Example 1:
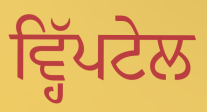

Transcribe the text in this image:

ਵ੍ਹਿੱਪਟੇਲ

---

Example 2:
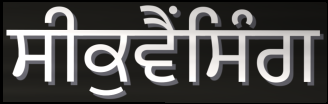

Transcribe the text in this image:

ਸੀਕੁਵੈਂਸਿੰਗ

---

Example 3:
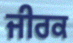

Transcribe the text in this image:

ਜੀਰਕ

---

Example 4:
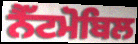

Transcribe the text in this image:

ਨੈੱਟਮੋਬਿਲ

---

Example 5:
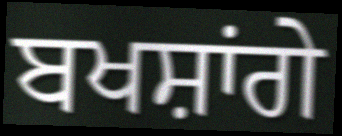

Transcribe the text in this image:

ਬਖਸ਼ਾਂਗੇ